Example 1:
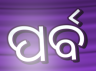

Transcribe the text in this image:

ପର୍ବ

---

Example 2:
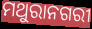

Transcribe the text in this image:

ମଥୁରାନଗରୀ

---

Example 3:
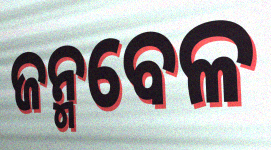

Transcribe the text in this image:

ଜନ୍ମବେଳ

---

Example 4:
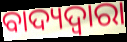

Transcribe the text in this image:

ବାଦ୍ୟଦ୍ୱାରା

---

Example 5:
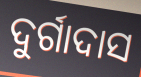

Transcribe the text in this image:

ଦୁର୍ଗାଦାସ